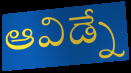
ఆవిడ్నే